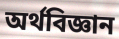
অৰ্থবিজ্ঞান